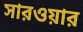
সারওয়ার